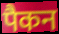
पैकन